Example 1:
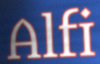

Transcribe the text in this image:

Alfi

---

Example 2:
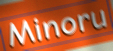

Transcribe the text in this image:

Minoru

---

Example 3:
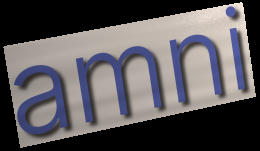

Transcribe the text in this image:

amni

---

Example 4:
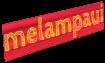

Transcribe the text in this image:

melampaui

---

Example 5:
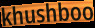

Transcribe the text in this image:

khushboo